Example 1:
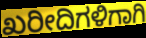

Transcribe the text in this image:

ಖರೀದಿಗಳಿಗಾಗಿ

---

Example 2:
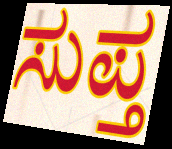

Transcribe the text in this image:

ಸುಪ್ತ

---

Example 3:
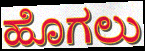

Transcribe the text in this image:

ಹೊಗಲು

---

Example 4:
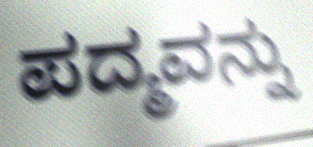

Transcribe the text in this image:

ಪದ್ಮವನ್ನು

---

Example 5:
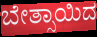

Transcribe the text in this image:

ಬೇತ್ಸಾಯಿದ